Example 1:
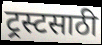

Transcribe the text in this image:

ट्रस्टसाठी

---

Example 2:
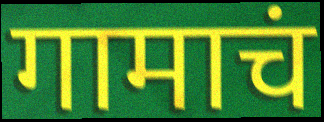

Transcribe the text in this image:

गामाचं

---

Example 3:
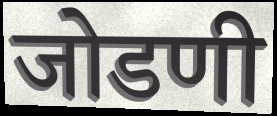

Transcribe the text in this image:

जोडणी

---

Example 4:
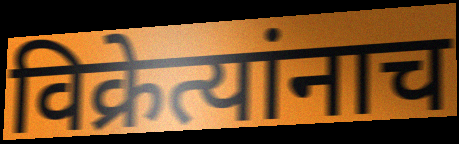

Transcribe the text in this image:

विक्रेत्यांनाच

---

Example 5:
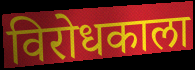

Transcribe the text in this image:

विरोधकाला